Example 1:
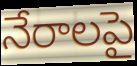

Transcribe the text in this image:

నేరాలపై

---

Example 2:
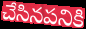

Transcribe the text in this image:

చేసినపనికి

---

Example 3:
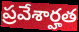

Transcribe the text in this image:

ప్రవేశార్హత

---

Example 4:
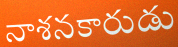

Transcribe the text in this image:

నాశనకారుడు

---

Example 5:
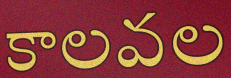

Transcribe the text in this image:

కాలవల